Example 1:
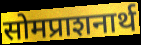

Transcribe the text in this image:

सोमप्राशनार्थ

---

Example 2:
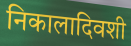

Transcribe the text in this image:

निकालादिवशी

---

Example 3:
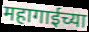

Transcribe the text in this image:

महागाईच्या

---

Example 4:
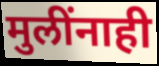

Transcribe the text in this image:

मुलींनाही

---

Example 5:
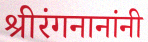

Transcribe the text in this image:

श्रीरंगनानांनी